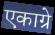
एकाग्रे